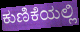
ಕುಣಿಕೆಯಲ್ಲಿ